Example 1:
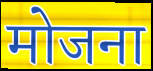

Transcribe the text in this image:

मोजना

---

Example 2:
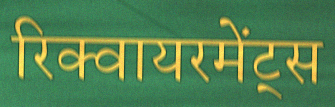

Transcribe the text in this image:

रिक्वायरमेंट्स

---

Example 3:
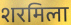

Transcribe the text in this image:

शरमिला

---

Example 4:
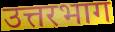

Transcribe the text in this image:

उत्तरभाग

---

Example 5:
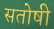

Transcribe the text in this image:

सतोषी